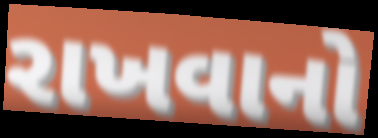
રાખવાનો